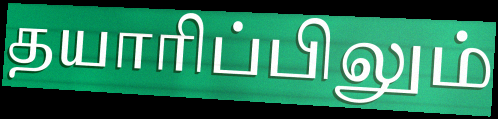
தயாரிப்பிலும்